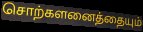
சொற்களனைத்தையும்